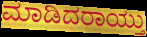
ಮಾಡಿದರಾಯ್ತು